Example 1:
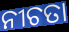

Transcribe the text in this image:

ନୀଚତା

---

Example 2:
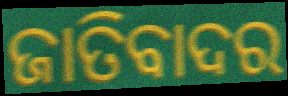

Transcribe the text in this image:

ଜାତିବାଦର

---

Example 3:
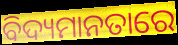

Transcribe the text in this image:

ବିଦ୍ୟମାନତାରେ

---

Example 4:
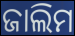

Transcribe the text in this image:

ଜାଲିମ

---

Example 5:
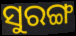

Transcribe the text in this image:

ସୁରଙ୍ଗ